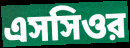
এসসিওর